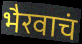
भैरवाचं